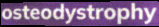
osteodystrophy